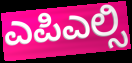
ಎಪಿಎಲ್ಸಿ